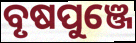
ବୃଷପୁଞ୍ଜେ